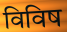
विविष